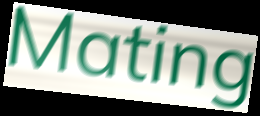
Mating